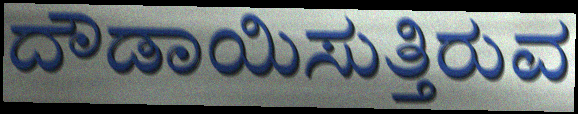
ದೌಡಾಯಿಸುತ್ತಿರುವ